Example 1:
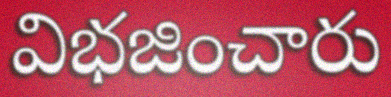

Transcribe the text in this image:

విభజించారు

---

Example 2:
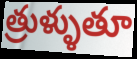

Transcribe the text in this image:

త్రుళ్ళుతూ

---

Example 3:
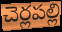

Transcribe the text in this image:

చెర్లపల్లి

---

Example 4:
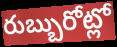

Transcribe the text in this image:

రుబ్బురోట్లో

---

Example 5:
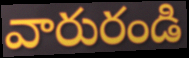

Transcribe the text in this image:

వారురండి